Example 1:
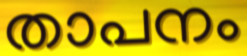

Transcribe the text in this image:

താപനം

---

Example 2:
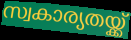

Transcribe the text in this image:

സ്വകാര്യതയ്ക്ക്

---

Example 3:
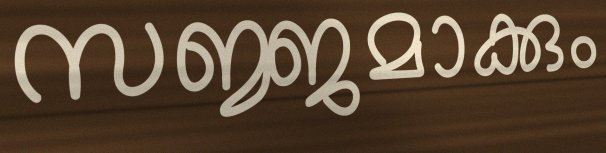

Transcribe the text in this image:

സജ്ജമാക്കും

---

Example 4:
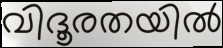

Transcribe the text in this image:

വിദൂരതയിൽ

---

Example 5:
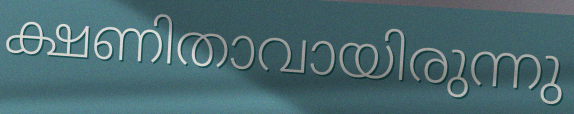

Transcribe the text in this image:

ക്ഷണിതാവായിരുന്നു